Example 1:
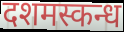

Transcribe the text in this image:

दशमस्कन्ध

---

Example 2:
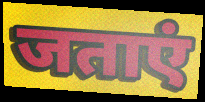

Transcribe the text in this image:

जताएं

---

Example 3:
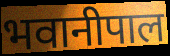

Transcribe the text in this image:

भवानीपाल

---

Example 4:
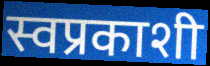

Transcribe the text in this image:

स्वप्रकाशी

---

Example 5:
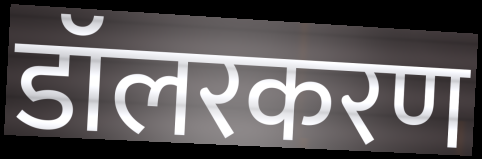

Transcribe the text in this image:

डॉलरकरण